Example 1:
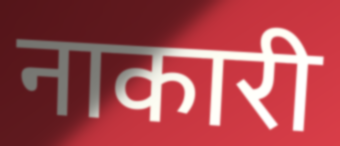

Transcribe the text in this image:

नाकारी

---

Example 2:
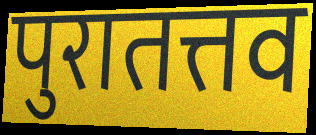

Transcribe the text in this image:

पुरातत्तव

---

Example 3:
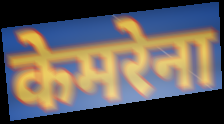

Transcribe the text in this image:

केमरेना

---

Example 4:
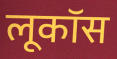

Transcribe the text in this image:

लूकॉस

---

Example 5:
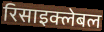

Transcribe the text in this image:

रिसाइक्लेबल